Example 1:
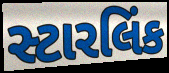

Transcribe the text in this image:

સ્ટારલિંક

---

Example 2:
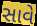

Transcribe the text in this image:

સાવે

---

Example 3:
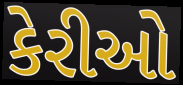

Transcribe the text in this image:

કેરીઓ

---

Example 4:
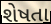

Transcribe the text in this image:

શેષતા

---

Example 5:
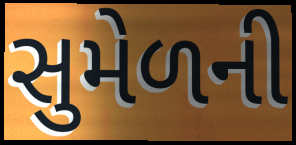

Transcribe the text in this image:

સુમેળની